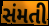
સંમતી